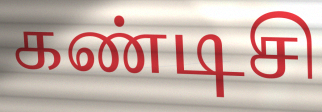
கண்டிசி